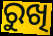
ରୁଖି